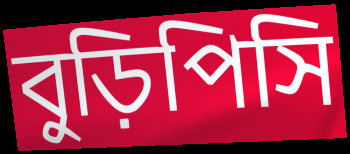
বুড়িপিসি